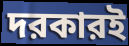
দরকারই